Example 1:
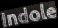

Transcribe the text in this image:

Indole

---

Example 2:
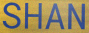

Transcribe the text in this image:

SHAN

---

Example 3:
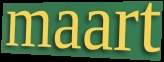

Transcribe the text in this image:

maart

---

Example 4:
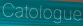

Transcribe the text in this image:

Catologue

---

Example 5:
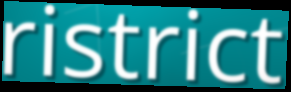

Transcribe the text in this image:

ristrict